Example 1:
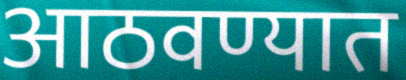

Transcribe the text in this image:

आठवण्यात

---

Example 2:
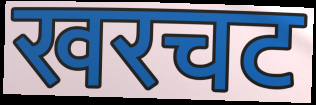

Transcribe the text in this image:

खरचट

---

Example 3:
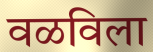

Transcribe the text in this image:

वळविला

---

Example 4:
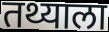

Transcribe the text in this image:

तथ्याला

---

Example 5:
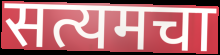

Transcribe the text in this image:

सत्यमचा